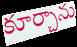
కూర్చాను